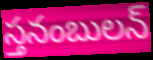
స్తనంబులన్